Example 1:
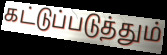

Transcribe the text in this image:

கட்டுப்படுத்தும்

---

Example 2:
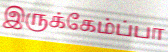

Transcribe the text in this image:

இருக்கேம்ப்பா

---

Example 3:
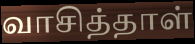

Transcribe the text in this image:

வாசித்தாள்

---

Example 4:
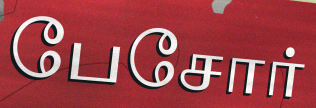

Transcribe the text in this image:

பேசோர்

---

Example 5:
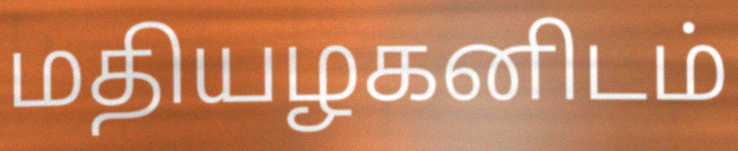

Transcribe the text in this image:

மதியழகனிடம்